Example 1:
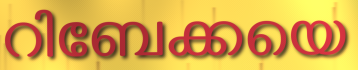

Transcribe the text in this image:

റിബേക്കയെ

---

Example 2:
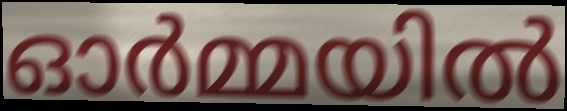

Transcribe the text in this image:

ഓർമ്മയിൽ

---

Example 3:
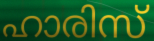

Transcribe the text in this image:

ഹാരിസ്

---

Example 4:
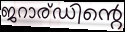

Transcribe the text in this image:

ജറാര്ഡിന്റെ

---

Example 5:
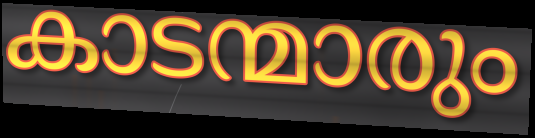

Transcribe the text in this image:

കാടന്മാരും